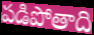
పడిపోతాది